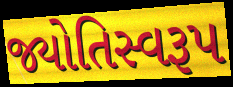
જ્યોતિસ્વરૂપ